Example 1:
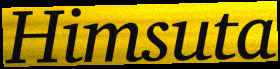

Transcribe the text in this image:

Himsuta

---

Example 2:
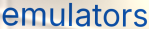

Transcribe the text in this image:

emulators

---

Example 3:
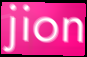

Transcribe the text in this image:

jion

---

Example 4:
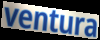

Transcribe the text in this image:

ventura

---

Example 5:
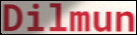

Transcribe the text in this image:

Dilmun